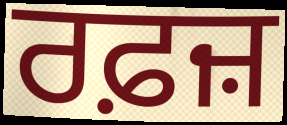
ਰਫ਼ਜ਼